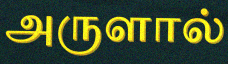
அருளால்